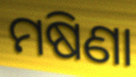
ମଷିଣା